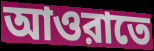
আওরাতে